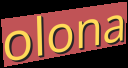
olona